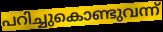
പറിച്ചുകൊണ്ടുവന്ന്